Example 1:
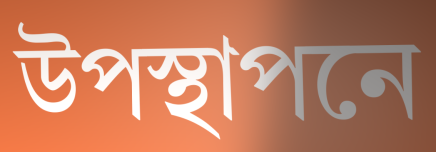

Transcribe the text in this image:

উপস্থাপনে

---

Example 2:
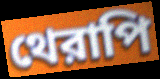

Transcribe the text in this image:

থেরাপি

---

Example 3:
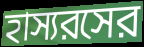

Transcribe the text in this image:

হাস্যরসের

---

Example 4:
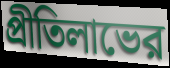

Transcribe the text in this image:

প্রীতিলাভের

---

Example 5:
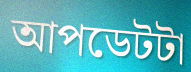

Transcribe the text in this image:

আপডেটটা